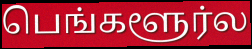
பெங்களூர்ல